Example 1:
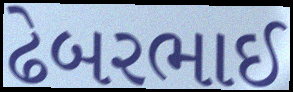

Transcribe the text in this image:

ઢેબરભાઈ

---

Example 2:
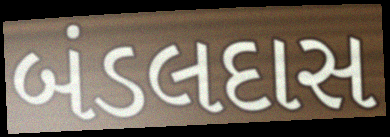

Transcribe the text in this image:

બંડલદાસ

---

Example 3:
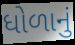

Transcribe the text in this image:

ધોળાનું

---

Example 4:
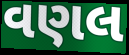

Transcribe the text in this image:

વણલ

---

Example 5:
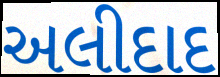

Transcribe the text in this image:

અલીદાદ